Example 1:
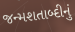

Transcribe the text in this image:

જન્મશતાબ્દીનું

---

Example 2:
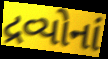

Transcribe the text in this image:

દ્રવ્યોનાં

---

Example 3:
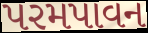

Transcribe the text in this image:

પરમપાવન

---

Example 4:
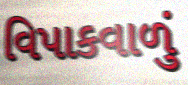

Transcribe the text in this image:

વિપાકવાળું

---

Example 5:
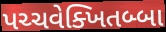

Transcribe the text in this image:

પચ્ચવેક્ખિતબ્બા